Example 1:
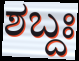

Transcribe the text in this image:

ಶಬ್ದಃ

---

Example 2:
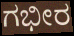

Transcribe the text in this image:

ಗಭೀರ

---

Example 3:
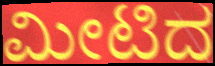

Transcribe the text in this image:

ಮೀಟಿದ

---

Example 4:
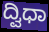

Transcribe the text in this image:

ದ್ವಿಧಾ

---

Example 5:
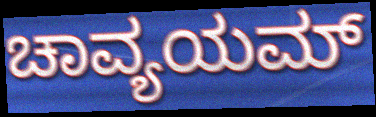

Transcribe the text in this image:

ಚಾವ್ಯಯಮ್